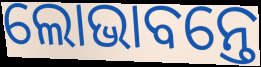
ଲୋଭାବନ୍ତେ